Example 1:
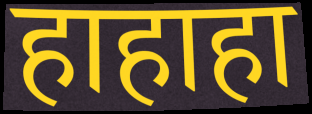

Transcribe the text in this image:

हाहाहा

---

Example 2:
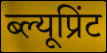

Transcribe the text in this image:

ब्ल्यूप्रिंट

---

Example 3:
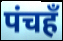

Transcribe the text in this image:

पंचहँ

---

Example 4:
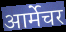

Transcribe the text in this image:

आर्मेचर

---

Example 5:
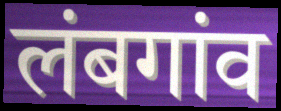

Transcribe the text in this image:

लंबगांव